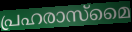
പ്രഹരാസ്മൈ